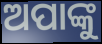
ଅପାଙ୍କୁ